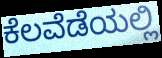
ಕೆಲವೆಡೆಯಲ್ಲಿ